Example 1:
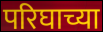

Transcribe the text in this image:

परिघाच्या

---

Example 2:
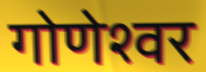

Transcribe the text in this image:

गोणेश्वर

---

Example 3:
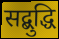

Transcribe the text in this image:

सद्बुद्धि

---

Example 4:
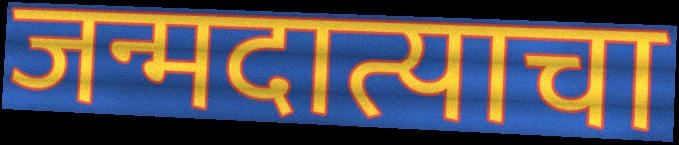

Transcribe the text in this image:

जन्मदात्याचा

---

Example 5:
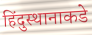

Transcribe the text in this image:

हिंदुस्थानाकडे